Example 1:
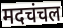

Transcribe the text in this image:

मदचंचल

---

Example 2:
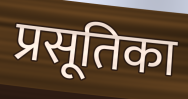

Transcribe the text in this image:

प्रसूतिका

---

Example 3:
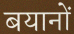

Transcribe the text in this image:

बयानों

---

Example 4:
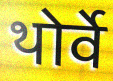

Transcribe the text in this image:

थोर्वे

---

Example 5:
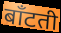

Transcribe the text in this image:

बाँटती